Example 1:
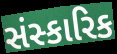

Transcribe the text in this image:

સંસ્કારિક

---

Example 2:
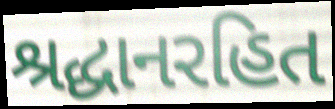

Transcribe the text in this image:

શ્રદ્ધાનરહિત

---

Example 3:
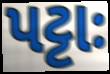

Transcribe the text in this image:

પટ્ટાઃ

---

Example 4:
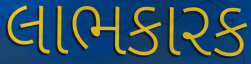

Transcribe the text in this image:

લાભકારક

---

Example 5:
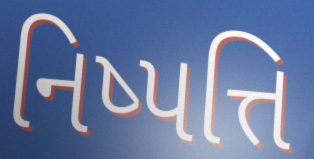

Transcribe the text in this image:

નિષ્પત્તિ